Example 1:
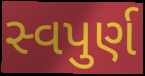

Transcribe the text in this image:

સ્વપુર્ણ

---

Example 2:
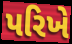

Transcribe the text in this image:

પરિખે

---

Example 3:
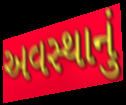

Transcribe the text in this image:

અવસ્થાનું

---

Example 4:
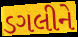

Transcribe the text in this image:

ડગલીને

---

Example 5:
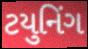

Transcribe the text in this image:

ટયુનિંગ